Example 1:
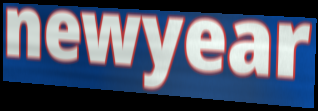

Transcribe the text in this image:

newyear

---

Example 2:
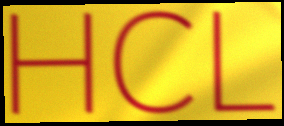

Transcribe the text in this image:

HCL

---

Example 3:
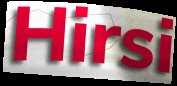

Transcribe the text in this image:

Hirsi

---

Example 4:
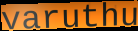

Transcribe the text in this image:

varuthu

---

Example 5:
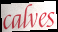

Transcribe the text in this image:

calves